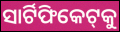
ସାର୍ଟିଫିକେଟ୍‌କୁ